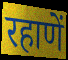
रहाणें